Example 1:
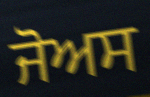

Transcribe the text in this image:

ਜੋਅਸ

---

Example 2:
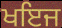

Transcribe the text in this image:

ਖਇਜ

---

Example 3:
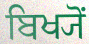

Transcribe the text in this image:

ਬਿਖ੍ਯੋਂ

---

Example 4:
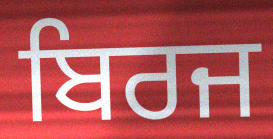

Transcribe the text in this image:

ਬਿਰਜ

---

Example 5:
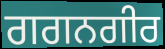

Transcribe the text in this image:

ਗਗਨਗੀਰ